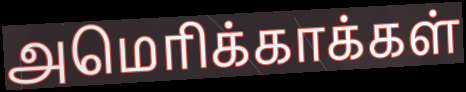
அமெரிக்காக்கள்